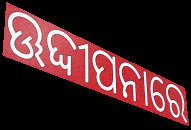
ଊଦ୍ଦୀପନାରେ